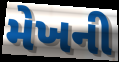
મેખની